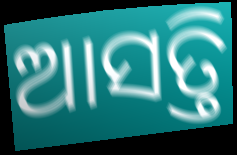
ଆସତ୍ତି